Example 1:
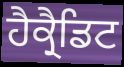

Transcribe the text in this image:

ਹੈਕ੍ਰੈਡਿਟ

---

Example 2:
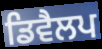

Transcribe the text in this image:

ਡਿਵੈਲਪ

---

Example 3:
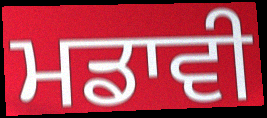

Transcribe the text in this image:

ਮਡਾਵੀ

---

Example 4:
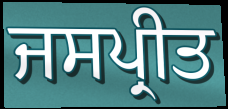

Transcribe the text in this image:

ਜਸਪ੍ਰੀਤ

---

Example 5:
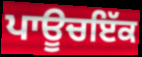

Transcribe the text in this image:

ਪਾਊਚਇੱਕ